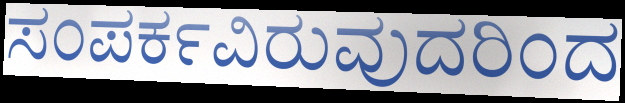
ಸಂಪರ್ಕವಿರುವುದರಿಂದ